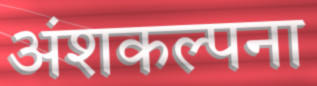
अंशकल्पना